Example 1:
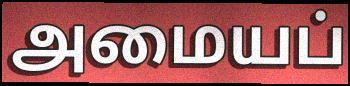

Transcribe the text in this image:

அமையப்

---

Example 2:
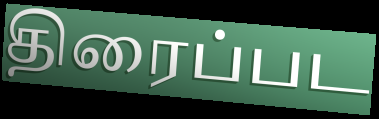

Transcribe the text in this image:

திரைப்பட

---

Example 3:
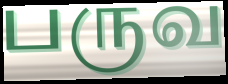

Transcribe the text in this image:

பருவ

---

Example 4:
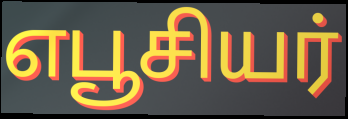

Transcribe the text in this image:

எபூசியர்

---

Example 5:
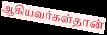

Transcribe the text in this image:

ஆகியவர்கள்தான்